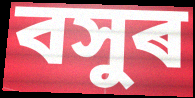
বসুৰ